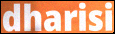
dharisi